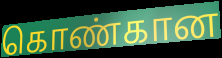
கொண்கான